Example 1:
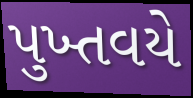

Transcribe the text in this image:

પુખ્તવયે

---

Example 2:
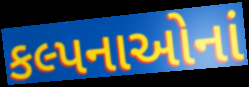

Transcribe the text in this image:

કલ્પનાઓનાં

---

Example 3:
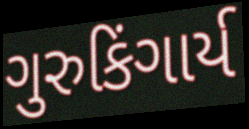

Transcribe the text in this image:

ગુરુકિંગાર્ય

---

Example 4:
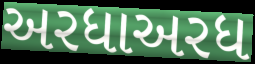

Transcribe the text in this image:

અરધાઅરધ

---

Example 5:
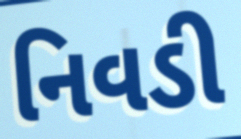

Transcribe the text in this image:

નિવડી